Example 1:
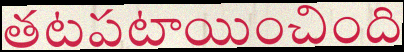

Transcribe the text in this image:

తటపటాయించింది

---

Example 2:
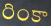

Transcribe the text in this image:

రింకా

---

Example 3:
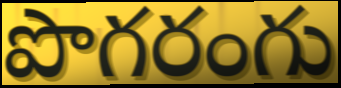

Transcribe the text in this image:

పొగరంగు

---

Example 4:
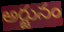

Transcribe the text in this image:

అర్జునం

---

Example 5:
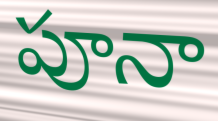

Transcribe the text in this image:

పూనా